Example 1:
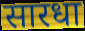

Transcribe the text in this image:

सारधा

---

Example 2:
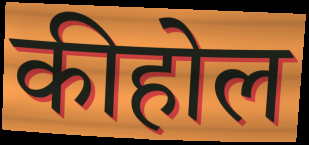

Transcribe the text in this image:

कीहोल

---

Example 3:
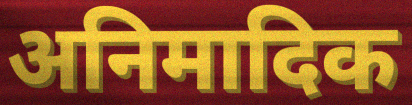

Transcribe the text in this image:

अनिमादिक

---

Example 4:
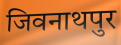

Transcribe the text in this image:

जिवनाथपुर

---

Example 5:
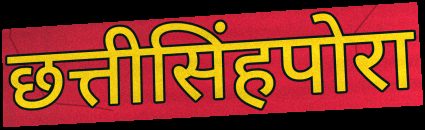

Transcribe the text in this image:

छत्तीसिंहपोरा